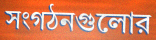
সংগঠনগুলোর